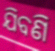
ଯିବଣି